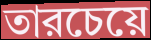
তারচেয়ে